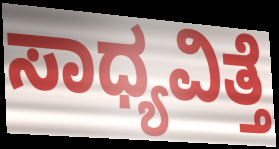
ಸಾಧ್ಯವಿತ್ತೆ